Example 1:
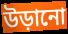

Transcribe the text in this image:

উড়ানো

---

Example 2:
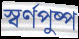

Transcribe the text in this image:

স্বর্ণপুষ্প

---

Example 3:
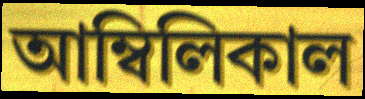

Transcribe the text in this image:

আম্বিলিকাল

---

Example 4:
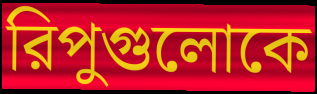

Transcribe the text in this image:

রিপুগুলোকে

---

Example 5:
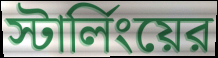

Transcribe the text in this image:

স্টার্লিংয়ের